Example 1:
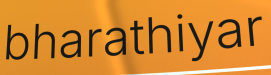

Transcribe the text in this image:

bharathiyar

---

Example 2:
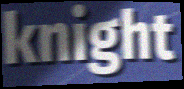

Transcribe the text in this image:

knight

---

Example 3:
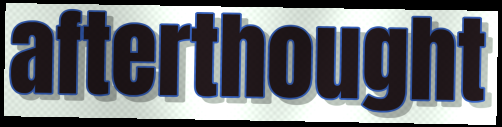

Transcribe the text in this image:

afterthought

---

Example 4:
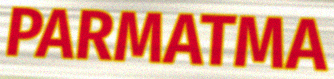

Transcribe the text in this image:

PARMATMA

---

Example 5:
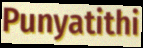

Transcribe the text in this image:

Punyatithi